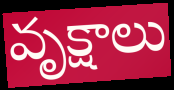
వృక్షాలు